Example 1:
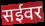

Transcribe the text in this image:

सईवर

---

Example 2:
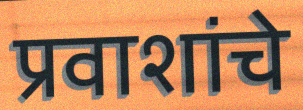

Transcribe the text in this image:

प्रवाशांचे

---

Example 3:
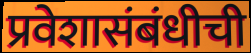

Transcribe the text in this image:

प्रवेशासंबंधीची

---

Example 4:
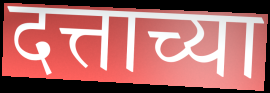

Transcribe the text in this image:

दत्ताच्या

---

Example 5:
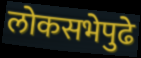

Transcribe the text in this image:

लोकसभेपुढे